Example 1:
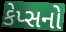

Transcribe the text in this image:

કેપ્સનો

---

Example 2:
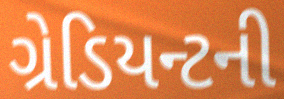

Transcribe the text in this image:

ગ્રેડિયન્ટની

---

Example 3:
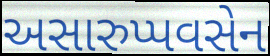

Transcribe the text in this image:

અસારુપ્પવસેન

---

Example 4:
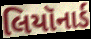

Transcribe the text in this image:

લિયૉનાર્ડ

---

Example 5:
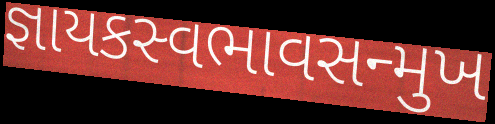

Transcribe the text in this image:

જ્ઞાયકસ્વભાવસન્મુખ